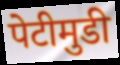
पेटीमुडी